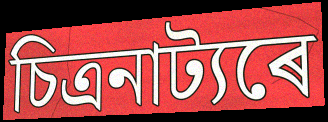
চিত্ৰনাট্যৰে